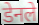
डेनले